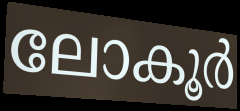
ലോകൂർ